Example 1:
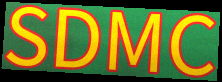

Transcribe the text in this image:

SDMC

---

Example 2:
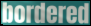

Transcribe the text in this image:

bordered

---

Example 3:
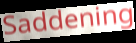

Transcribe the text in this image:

Saddening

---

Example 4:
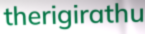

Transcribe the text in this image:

therigirathu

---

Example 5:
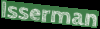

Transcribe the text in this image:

Isserman